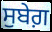
ਸੁਬੇਗ਼